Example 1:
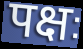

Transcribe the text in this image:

पक्षः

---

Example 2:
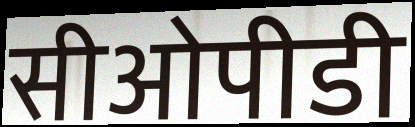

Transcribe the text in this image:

सीओपीडी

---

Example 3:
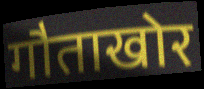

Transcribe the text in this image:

गौताखोर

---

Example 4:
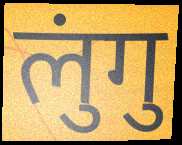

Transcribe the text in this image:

लुंगु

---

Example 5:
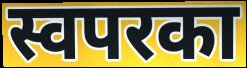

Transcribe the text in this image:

स्वपरका